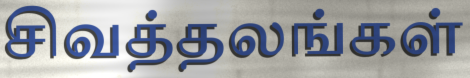
சிவத்தலங்கள்